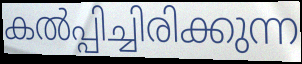
കൽപ്പിച്ചിരിക്കുന്ന